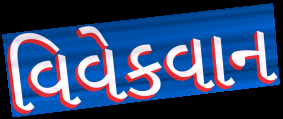
વિવેકવાન